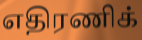
எதிரணிக்